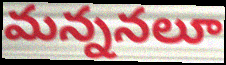
మన్ననలూ